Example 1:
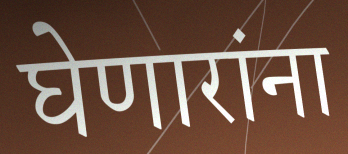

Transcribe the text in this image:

घेणारांना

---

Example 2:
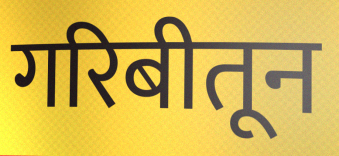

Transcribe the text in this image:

गरिबीतून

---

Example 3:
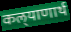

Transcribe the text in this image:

कल्याणार्थ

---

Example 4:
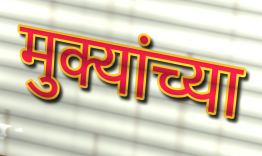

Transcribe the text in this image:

मुक्यांच्या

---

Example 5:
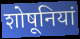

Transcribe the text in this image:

शोषूनियां